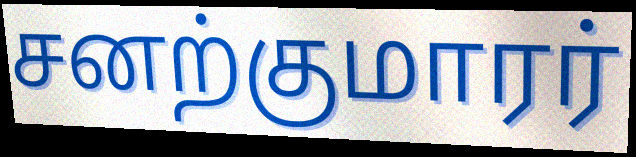
சனற்குமாரர்